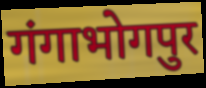
गंगाभोगपुर